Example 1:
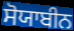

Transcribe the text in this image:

ਸੋਯਾਬੀਨ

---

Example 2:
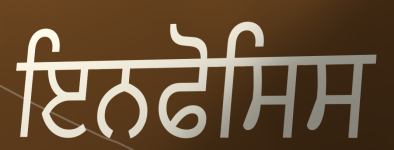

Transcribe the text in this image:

ਇਨਫੋਸਿਸ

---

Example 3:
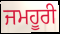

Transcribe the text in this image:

ਜਮਹੂਰੀ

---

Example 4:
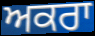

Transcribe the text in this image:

ਅਕਰਾ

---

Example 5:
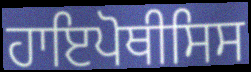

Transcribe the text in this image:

ਹਾਇਪੋਥੀਸਿਸ